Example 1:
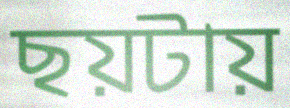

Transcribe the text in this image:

ছয়টায়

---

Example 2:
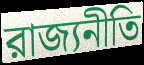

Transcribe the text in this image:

রাজ্যনীতি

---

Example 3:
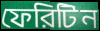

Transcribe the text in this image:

ফেরিটিন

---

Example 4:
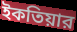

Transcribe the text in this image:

ইকতিয়ার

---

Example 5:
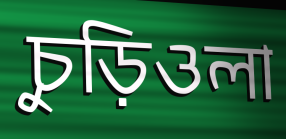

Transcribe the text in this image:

চুড়িওলা